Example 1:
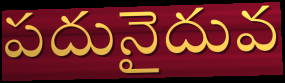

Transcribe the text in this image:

పదునైదువ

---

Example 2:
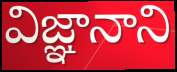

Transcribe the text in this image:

విజ్ఞానాని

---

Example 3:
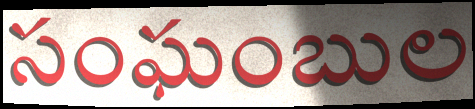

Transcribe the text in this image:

సంఘంబుల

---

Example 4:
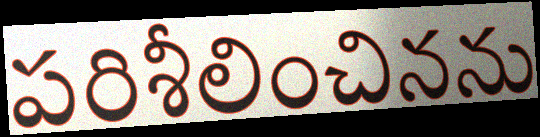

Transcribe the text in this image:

పరిశీలించినను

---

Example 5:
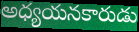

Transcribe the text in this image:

అధ్యయనకారుడు